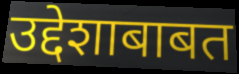
उद्देशाबाबत